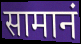
सामानं